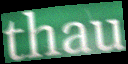
thau